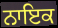
ਨਾਇਕ